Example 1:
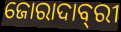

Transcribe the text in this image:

ଜୋରାଦାବ୍‌ରୀ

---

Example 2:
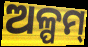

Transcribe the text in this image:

ଅଳ୍ପମ୍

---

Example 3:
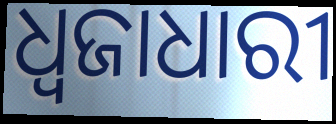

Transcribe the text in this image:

ଧ୍ଵଜାଧାରୀ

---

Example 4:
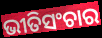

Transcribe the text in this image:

ଭୀତିସଂଚାର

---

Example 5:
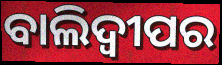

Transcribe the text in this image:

ବାଲିଦ୍ୱୀପର